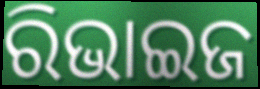
ରିଭାଇଜ